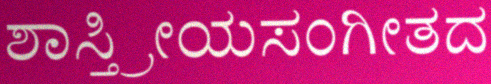
ಶಾಸ್ತ್ರೀಯಸಂಗೀತದ